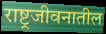
राष्ट्रजीवनातील